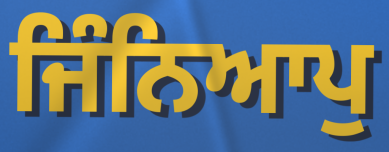
ਜਿੰਨਿਆਪੁ